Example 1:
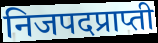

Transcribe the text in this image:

निजपदप्राप्ती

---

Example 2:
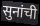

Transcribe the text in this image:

सुनांची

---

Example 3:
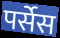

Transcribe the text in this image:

पर्सेस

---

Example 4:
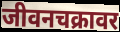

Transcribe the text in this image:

जीवनचक्रावर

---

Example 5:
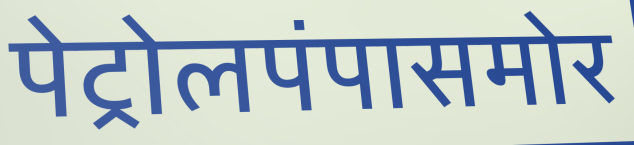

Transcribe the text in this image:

पेट्रोलपंपासमोर